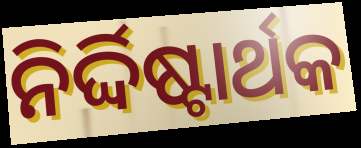
ନିର୍ଦ୍ଦିଷ୍ଟାର୍ଥକ